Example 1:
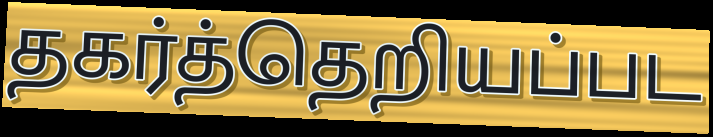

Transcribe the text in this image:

தகர்த்தெறியப்பட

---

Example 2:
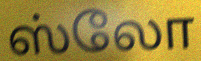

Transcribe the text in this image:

ஸ்லோ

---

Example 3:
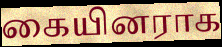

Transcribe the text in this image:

கையினராக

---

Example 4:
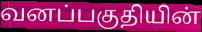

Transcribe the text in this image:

வனப்பகுதியின்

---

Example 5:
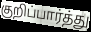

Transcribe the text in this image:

குறிப்பார்த்து